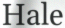
Hale